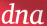
dna